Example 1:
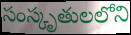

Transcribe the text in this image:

సంస్కృతులలోని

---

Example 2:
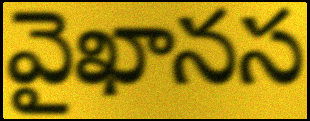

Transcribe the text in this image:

వైఖానస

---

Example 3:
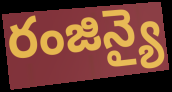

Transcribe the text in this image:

రంజిన్యై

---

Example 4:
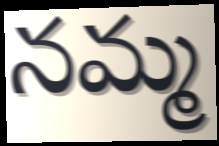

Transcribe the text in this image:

నమ్మ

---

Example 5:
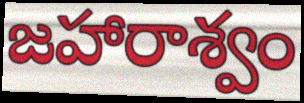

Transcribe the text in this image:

జహారాశ్వం